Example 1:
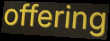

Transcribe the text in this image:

offering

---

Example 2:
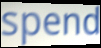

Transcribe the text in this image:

spend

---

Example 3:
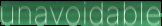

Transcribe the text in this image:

unavoidable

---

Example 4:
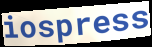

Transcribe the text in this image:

iospress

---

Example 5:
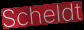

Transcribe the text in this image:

Scheldt